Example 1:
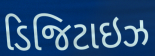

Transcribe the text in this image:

ડિજિટાઇઝ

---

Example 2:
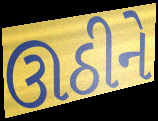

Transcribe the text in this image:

ઊઠીને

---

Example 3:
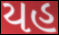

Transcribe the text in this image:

યહ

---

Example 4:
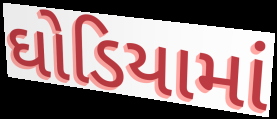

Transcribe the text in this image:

ઘોડિયામાં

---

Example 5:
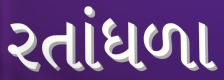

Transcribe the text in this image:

રતાંધળા